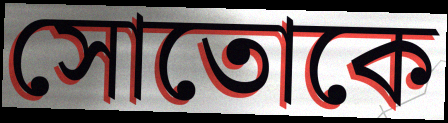
সোতোকে